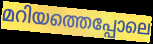
മറിയത്തെപ്പോലെ